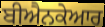
ਬੀਐਨਕੇਆਰ